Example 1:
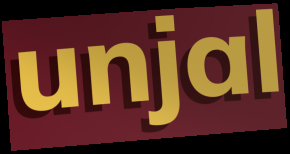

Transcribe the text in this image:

unjal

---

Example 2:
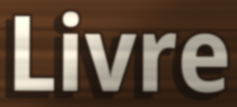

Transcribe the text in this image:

Livre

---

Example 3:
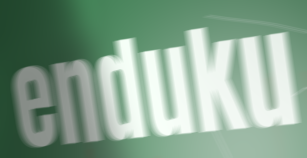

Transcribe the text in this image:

enduku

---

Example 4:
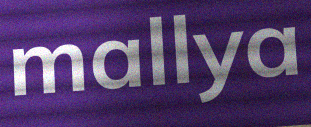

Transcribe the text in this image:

mallya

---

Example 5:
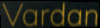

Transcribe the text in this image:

Vardan